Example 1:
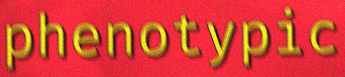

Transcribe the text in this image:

phenotypic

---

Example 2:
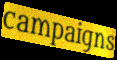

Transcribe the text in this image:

campaigns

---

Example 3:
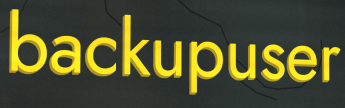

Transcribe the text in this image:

backupuser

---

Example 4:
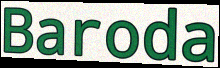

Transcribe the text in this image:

Baroda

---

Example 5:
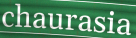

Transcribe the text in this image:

chaurasia